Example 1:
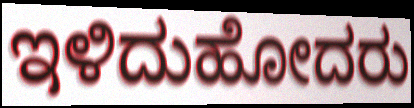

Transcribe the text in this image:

ಇಳಿದುಹೋದರು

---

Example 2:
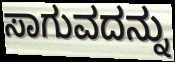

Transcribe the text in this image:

ಸಾಗುವದನ್ನು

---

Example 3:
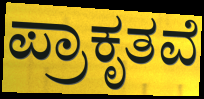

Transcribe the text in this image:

ಪ್ರಾಕೃತವೆ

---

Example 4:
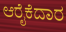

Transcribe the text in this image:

ಆರೈಕೆದಾರ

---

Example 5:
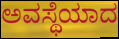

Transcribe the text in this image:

ಅವಸ್ಥೆಯಾದ